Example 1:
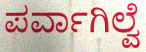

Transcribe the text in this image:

ಪರ್ವಾಗಿಲ್ವೆ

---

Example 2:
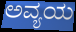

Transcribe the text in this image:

ಅವ್ಯಯ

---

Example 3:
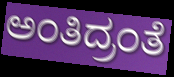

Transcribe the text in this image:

ಅಂತಿದ್ರಂತೆ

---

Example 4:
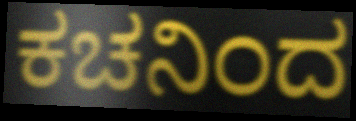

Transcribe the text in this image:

ಕಚನಿಂದ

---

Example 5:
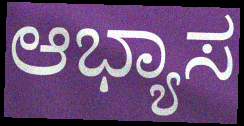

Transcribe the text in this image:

ಆಭ್ಯಾಸ